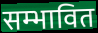
सम्भावित